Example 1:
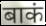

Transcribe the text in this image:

बाकं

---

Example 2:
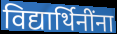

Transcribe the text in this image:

विद्यार्थिनींना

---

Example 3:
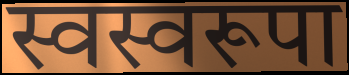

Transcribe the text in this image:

स्वस्वरूपा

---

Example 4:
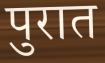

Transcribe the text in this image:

पुरात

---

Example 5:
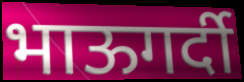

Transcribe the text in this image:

भाऊगर्दी